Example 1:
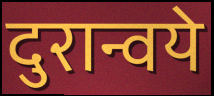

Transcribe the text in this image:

दुरान्वये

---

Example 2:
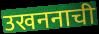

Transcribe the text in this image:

उखननाची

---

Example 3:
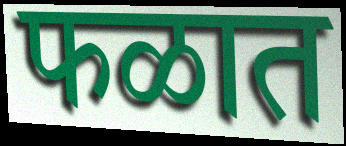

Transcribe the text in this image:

फळात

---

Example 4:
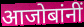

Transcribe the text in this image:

आजोबांनीं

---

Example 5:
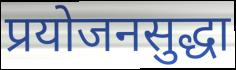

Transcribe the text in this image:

प्रयोजनसुद्धा